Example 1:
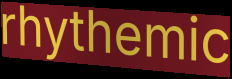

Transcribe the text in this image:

rhythemic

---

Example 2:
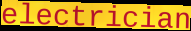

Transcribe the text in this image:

electrician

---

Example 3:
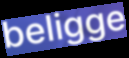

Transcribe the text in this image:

beligge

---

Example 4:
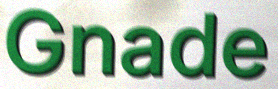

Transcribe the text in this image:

Gnade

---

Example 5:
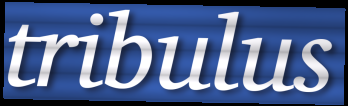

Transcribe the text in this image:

tribulus